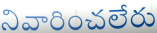
నివారించలేరు